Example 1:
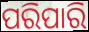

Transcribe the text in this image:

ପରିପାରି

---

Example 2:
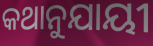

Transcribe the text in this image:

କଥାନୁଯାୟୀ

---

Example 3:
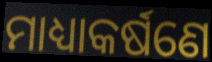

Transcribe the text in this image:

ମାଧ୍ୟାକର୍ଷଣେ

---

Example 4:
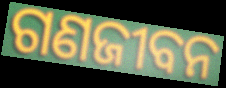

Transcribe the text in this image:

ଗଣଜୀବନ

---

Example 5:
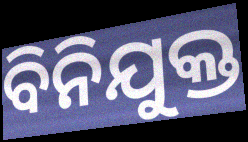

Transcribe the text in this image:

ବିନିଯୁକ୍ତ